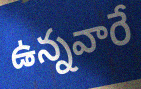
ఉన్నవారే